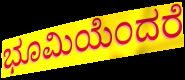
ಭೂಮಿಯೆಂದರೆ